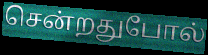
சென்றதுபோல்